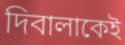
দিবালাকেই